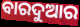
ବାରଦୁଆର